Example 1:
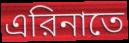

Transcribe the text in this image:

এরিনাতে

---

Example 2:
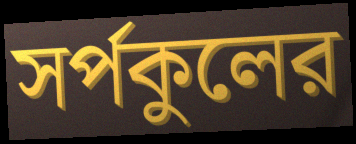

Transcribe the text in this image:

সর্পকুলের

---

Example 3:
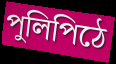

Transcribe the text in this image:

পুলিপিঠে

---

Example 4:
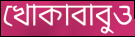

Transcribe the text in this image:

খোকাবাবুও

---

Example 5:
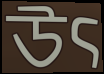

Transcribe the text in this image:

উৎ